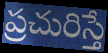
ప్రచురిస్తే